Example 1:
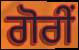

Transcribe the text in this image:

ਗੋਰੀਂ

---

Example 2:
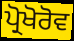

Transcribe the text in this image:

ਪ੍ਰੋਖੋਰੋਵ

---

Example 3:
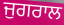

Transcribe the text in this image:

ਜੁਗਰਾਲ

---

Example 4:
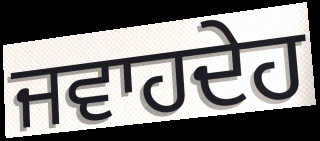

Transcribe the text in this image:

ਜਵਾਹਦੇਹ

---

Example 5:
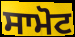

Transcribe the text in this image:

ਸਾਮੋਟ